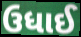
ઉધાઈ